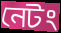
নেটং